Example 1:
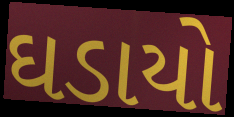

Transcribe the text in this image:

ઘડાયો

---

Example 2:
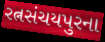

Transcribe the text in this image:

રત્નસંચયપુરના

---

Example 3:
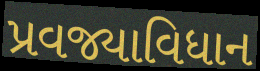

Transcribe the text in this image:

પ્રવજ્યાવિધાન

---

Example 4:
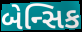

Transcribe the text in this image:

બેન્સિક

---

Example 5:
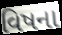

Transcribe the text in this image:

વિષના